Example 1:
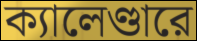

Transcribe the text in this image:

ক্যালেণ্ডারে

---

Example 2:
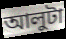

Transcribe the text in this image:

আলুটা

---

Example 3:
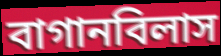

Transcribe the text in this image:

বাগানবিলাস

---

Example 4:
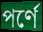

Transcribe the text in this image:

পর্ণে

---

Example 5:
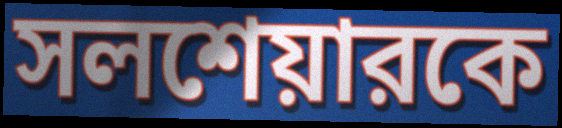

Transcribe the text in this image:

সলশেয়ারকে